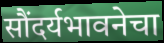
सौंदर्यभावनेचा